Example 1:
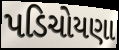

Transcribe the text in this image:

પડિચોયણા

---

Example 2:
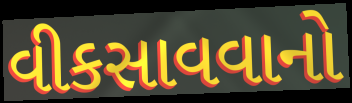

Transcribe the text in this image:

વીકસાવવાનો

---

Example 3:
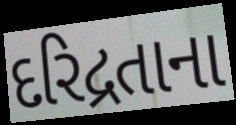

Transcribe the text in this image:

દરિદ્રતાના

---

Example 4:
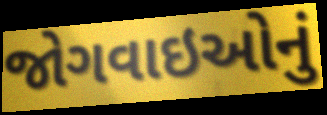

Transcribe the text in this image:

જોગવાઇઓનું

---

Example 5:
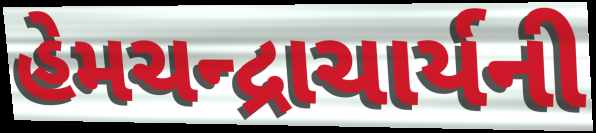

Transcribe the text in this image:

હેમચન્દ્રાચાર્યની